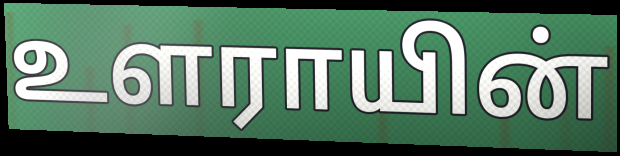
உளராயின்